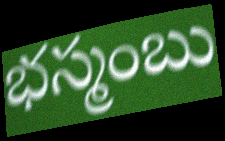
భస్మంబు